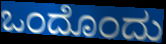
ಒಂದೊಂದು